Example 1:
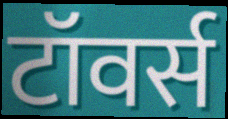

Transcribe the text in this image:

टॉवर्स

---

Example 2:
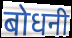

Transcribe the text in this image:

बोधनी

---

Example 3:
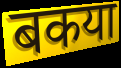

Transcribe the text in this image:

बकया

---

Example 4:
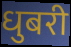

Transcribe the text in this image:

धुबरी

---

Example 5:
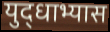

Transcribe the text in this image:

युद्धाभ्यास